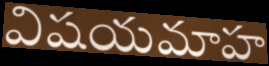
విషయమాహ